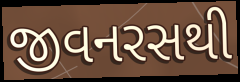
જીવનરસથી